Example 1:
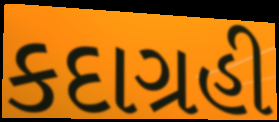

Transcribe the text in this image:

કદાગ્રહી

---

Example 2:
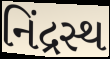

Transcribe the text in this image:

નિંદ્રસ્થ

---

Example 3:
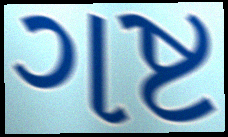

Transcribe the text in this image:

ગષ્ટ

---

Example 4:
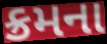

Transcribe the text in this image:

ક્રમના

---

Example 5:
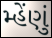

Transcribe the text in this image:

મ્હેંણું